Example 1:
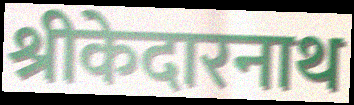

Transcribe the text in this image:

श्रीकेदारनाथ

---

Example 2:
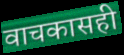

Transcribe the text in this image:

वाचकासही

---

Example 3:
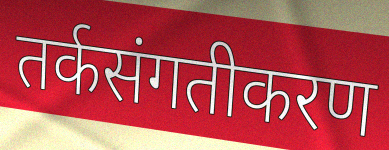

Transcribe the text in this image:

तर्कसंगतीकरण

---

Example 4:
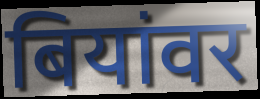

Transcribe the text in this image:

बियांवर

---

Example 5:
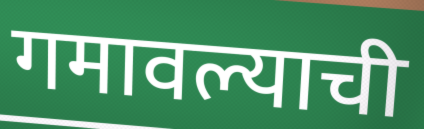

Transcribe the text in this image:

गमावल्याची